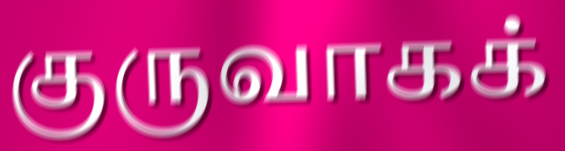
குருவாகக்